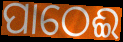
ପାଠେଈ